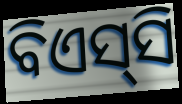
ବିଏସ୍‌ସି